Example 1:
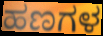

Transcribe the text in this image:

ಹಣಗಳ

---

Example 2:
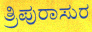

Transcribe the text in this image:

ತ್ರಿಪುರಾಸುರ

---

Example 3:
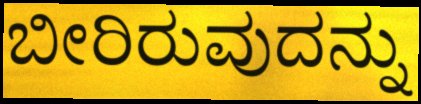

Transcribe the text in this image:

ಬೀರಿರುವುದನ್ನು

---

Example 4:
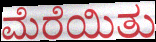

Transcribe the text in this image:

ಮೆರೆಯಿತು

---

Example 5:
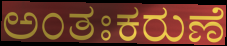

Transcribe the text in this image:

ಅಂತಃಕರುಣೆ